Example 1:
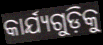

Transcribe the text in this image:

କାର୍ଯ୍ୟଗୁଡ଼ିକୁ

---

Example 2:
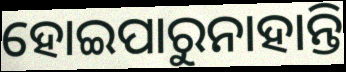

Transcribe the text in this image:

ହୋଇପାରୁନାହାନ୍ତି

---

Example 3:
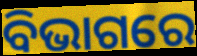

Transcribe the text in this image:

ବିଭାଗରେ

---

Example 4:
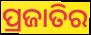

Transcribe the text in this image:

ପ୍ରଜାତିର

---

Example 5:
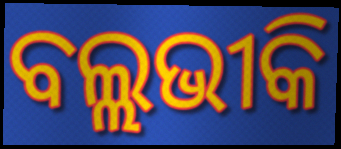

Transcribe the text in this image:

ବଲ୍ଲଭୀକି